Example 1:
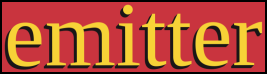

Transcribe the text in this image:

emitter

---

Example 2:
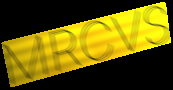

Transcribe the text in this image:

MRCVS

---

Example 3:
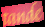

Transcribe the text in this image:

tande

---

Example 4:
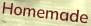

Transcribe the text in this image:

Homemade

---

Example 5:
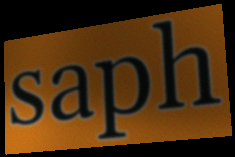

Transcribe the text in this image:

saph